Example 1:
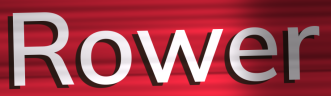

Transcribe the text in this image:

Rower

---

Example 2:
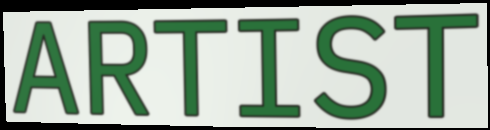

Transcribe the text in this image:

ARTIST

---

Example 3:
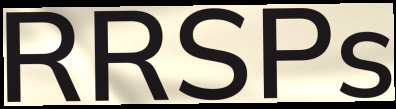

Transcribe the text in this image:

RRSPs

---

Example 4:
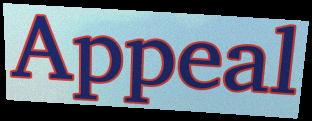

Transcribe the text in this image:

Appeal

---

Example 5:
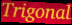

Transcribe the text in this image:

Trigonal